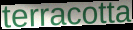
terracotta